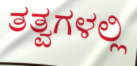
ತತ್ವಗಳಲ್ಲಿ